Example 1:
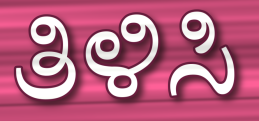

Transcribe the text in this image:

ತಿಳಿಸಿ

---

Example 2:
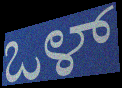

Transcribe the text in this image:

ಒಳ್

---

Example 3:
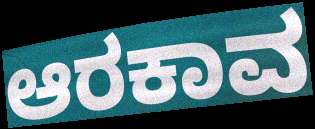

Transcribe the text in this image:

ಆರಕಾವ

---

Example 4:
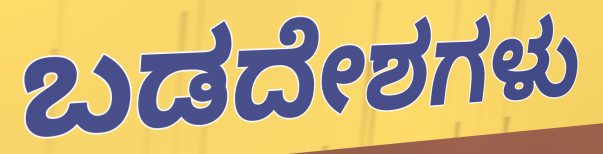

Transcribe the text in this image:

ಬಡದೇಶಗಳು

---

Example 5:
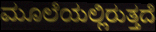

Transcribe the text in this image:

ಮೂಲೆಯಲ್ಲಿರುತ್ತದೆ